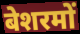
बेशरमों